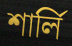
শার্লি